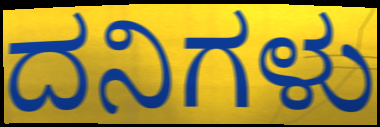
ದನಿಗಳು